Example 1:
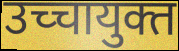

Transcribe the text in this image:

उच्‍चायुक्‍त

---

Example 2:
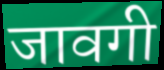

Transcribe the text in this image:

जावगी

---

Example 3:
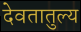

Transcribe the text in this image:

देवतातुल्य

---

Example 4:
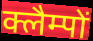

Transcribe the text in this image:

क्लैम्पों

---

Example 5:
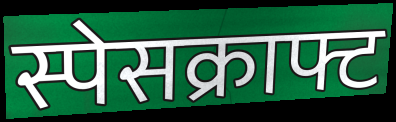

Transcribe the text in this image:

स्‍पेसक्राफ्ट